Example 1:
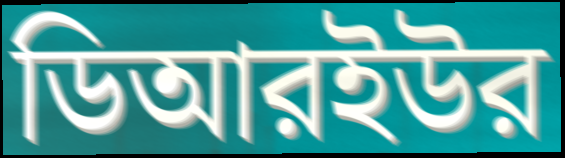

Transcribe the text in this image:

ডিআরইউর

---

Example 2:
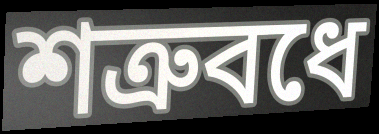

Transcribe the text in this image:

শত্রুবধে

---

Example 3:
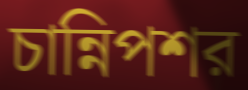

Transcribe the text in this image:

চান্নিপশর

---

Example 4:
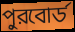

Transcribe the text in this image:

পুরবোর্ড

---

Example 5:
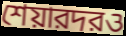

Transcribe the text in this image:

শেয়ারদরও